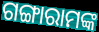
ଗଙ୍ଗାରାମଙ୍କ